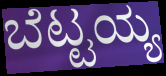
ಬೆಟ್ಟಯ್ಯ